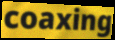
coaxing